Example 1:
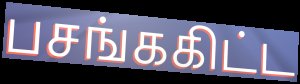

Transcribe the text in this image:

பசங்ககிட்ட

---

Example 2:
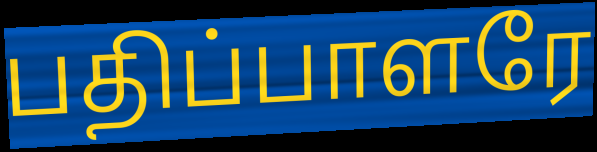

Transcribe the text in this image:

பதிப்பாளரே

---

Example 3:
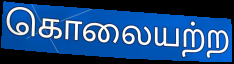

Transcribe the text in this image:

கொலையற்ற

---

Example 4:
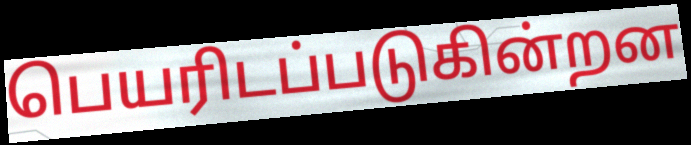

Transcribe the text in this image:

பெயரிடப்படுகின்றன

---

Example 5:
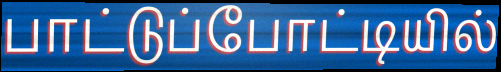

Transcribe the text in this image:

பாட்டுப்போட்டியில்